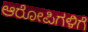
ಆರೋಪಿಗಳಿಗೆ